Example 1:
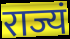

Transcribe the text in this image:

राज्यं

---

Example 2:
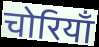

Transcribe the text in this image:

चोरियाँ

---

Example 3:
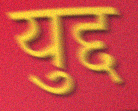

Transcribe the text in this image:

युद्द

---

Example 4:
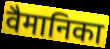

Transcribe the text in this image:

वैमानिका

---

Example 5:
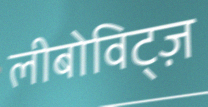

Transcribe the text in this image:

लीबोविट्ज़